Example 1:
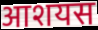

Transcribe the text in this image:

आशयस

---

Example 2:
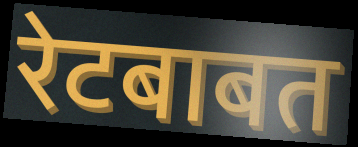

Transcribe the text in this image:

रेटबाबत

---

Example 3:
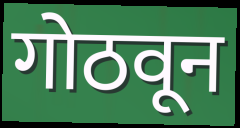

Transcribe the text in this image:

गोठवून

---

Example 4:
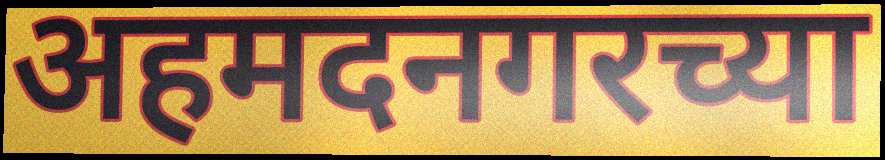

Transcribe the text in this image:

अहमदनगरच्या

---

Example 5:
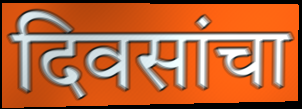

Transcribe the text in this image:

दिवसांचा